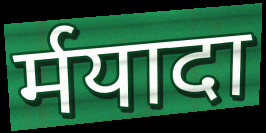
र्मयादा